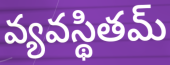
వ్యవస్థితమ్